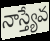
నాస్త్యేవ